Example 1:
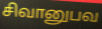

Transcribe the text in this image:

சிவானுபவ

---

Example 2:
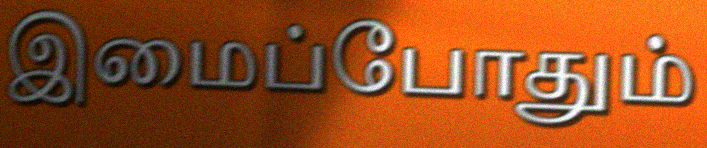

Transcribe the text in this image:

இமைப்போதும்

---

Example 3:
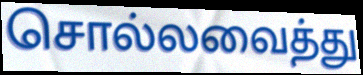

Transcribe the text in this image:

சொல்லவைத்து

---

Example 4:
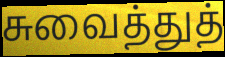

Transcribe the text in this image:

சுவைத்துத்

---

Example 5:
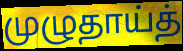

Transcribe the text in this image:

முழுதாய்த்